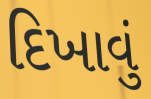
દિખાવું